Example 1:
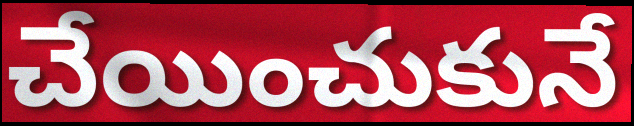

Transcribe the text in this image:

చేయించుకునే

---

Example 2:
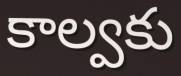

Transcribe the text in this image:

కాల్వకు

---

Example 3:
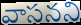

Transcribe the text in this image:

వాసనని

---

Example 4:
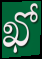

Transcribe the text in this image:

ఖో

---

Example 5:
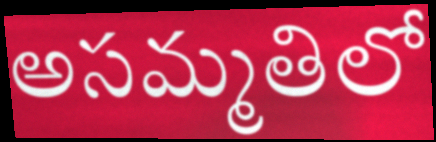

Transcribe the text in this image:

అసమ్మతిలో